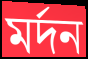
মৰ্দন